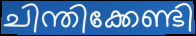
ചിന്തിക്കേണ്ടി